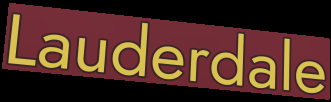
Lauderdale